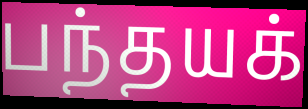
பந்தயக்